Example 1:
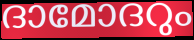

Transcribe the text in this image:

ദാമോദറും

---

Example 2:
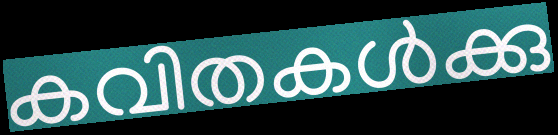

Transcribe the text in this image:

കവിതകൾക്കു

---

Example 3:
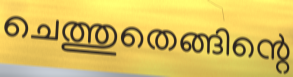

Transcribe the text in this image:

ചെത്തുതെങ്ങിന്റെ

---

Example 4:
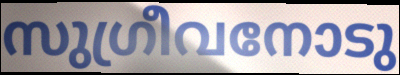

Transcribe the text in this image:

സുഗ്രീവനോടു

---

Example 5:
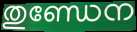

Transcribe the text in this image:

തുണ്ഡേന